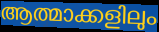
ആത്മാക്കളിലും